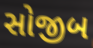
સોજીબ